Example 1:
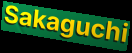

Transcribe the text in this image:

Sakaguchi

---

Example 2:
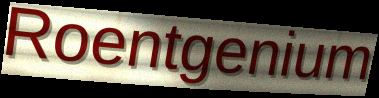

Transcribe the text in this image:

Roentgenium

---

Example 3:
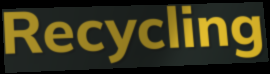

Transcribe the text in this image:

Recycling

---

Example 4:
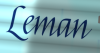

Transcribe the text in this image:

Leman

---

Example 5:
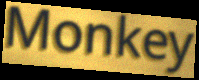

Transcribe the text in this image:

Monkey